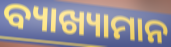
ବ୍ୟାଖ୍ୟାମାନ